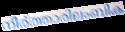
നീര്ത്താരിലംബിക